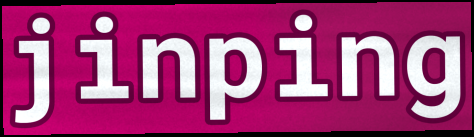
jinping